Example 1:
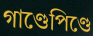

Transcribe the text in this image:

গাণ্ডেপিণ্ডে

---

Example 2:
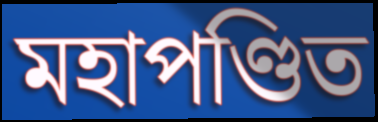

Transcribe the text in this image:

মহাপণ্ডিত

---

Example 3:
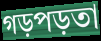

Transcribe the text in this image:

গড়পড়তা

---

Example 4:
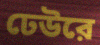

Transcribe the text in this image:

ঢেউরে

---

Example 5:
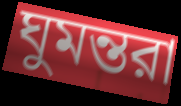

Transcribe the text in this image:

ঘুমন্তরা